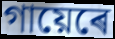
গায়েৰে